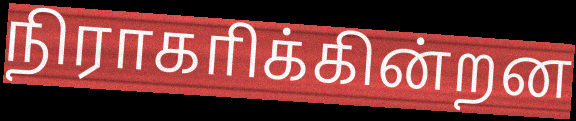
நிராகரிக்கின்றன